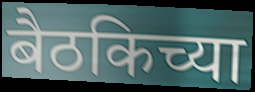
बैठकिच्या